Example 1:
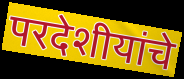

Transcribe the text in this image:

परदेशीयांचे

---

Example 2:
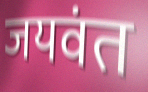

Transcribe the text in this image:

जयवंत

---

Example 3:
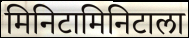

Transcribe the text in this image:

मिनिटामिनिटाला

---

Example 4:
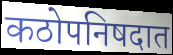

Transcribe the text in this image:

कठोपनिषदात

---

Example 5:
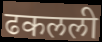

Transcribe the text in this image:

ढकलली